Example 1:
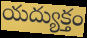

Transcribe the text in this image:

యద్యుక్తం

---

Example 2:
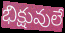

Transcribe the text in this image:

భిక్షువులే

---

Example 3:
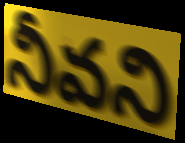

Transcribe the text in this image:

నీవని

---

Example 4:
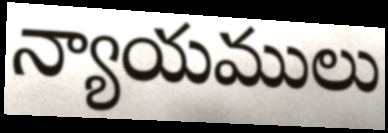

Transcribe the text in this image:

న్యాయములు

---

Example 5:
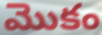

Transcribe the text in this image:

మొకం